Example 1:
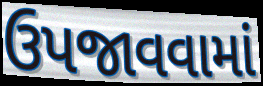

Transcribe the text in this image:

ઉપજાવવામાં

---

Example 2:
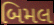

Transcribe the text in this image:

બિમલ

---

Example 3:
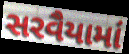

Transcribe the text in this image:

સરવૈયામાં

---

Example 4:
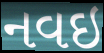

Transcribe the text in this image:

નવઇ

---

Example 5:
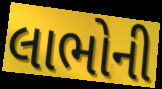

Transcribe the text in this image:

લાભોની